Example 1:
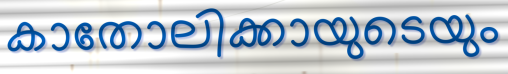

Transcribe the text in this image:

കാതോലിക്കായുടെയും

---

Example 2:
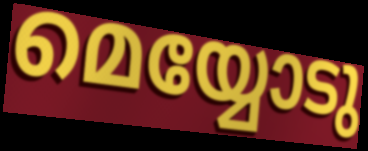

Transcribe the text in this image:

മെയ്യോടു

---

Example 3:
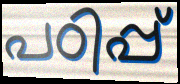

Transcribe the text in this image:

പഠിപ്പ്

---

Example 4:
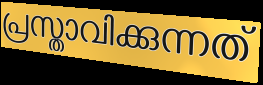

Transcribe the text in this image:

പ്രസ്താവിക്കുന്നത്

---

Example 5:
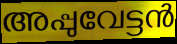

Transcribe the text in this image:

അപ്പുവേട്ടൻ